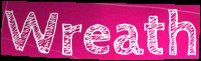
Wreath